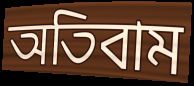
অতিবাম